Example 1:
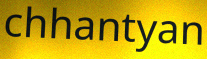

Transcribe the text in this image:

chhantyan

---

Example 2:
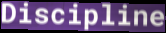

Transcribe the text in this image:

Discipline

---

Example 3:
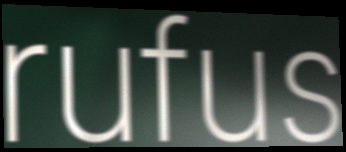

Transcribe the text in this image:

rufus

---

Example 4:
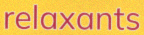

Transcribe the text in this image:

relaxants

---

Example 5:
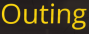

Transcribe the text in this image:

Outing